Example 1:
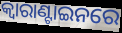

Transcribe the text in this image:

କ୍ବାରାଣ୍ଟାଇନରେ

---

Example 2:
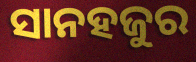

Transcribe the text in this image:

ସାନହଜୁର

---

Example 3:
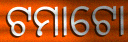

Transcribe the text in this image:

ଟମାଟୋ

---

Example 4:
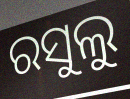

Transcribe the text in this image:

ରସୁଲୁ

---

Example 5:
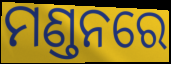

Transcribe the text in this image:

ମଣ୍ଡନରେ